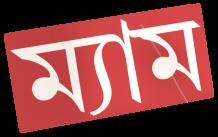
ম্যাম